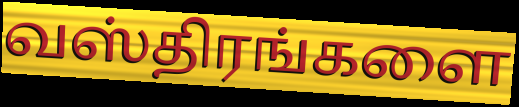
வஸ்திரங்களை